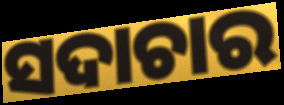
ସଦାଚାର